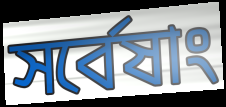
সর্বেষাং